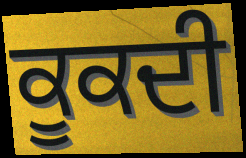
ਕੂਕਦੀ